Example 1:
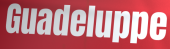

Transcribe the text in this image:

Guadeluppe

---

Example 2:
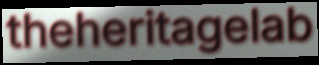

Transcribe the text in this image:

theheritagelab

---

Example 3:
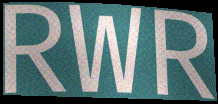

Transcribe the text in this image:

RWR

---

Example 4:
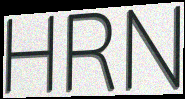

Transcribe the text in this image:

HRN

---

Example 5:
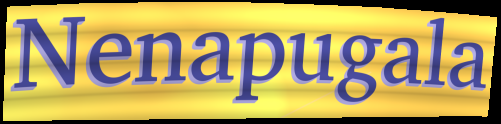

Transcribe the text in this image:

Nenapugala